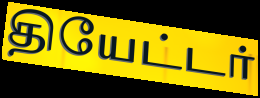
தியேட்டர்